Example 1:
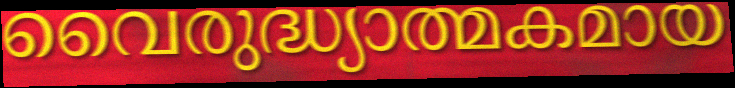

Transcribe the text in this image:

വൈരുദ്ധ്യാത്മകമായ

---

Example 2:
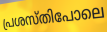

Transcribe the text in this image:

പ്രശസ്തിപോലെ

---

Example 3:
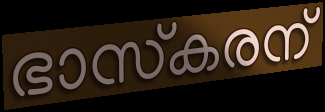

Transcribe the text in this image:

ഭാസ്‌കരന്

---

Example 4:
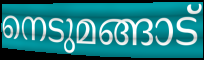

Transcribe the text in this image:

നെടുമങ്ങാട്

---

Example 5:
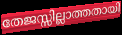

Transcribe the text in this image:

തേജസ്സില്ലാത്തതായി